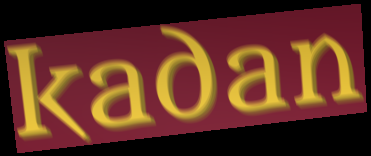
kadan